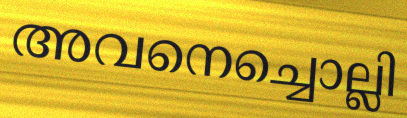
അവനെച്ചൊല്ലി